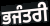
ਭਜੰਤਰੀ